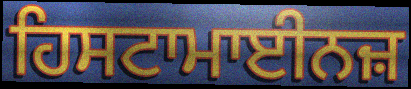
ਹਿਸਟਾਮਾਈਨਜ਼